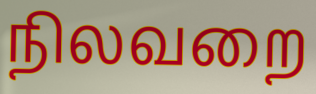
நிலவறை